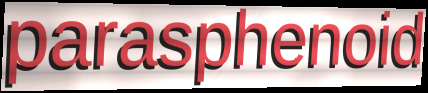
parasphenoid